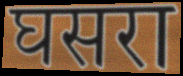
घसरा